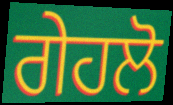
ਗੇਹਲੋ